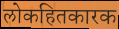
लोकहितकारक